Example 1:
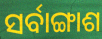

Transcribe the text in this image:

ସର୍ବାଙ୍ଗାଶ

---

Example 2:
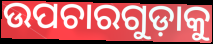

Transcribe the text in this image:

ଉପଚାରଗୁଡ଼ାକୁ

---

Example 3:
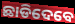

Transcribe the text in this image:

ଛାଡିଦେବେ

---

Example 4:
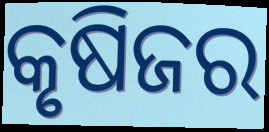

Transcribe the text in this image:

କୃଷିଜର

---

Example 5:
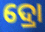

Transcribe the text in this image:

ଦ୍ରୋ